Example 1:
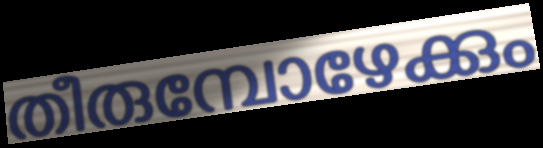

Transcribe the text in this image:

തീരുമ്പോഴേക്കും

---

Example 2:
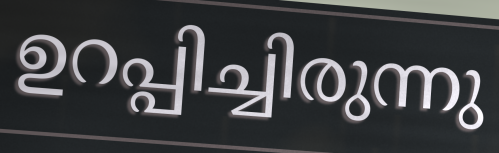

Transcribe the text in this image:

ഉറപ്പിച്ചിരുന്നു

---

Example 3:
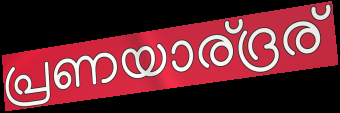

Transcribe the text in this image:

പ്രണയാര്ദ്രര്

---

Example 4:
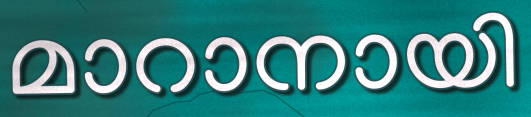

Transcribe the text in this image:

മാറാനായി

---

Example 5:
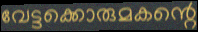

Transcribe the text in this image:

വേട്ടക്കൊരുമകന്റെ